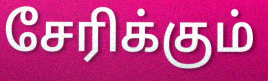
சேரிக்கும்